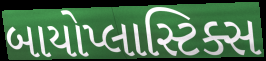
બાયોપ્લાસ્ટિક્સ